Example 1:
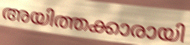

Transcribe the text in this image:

അയിത്തക്കാരായി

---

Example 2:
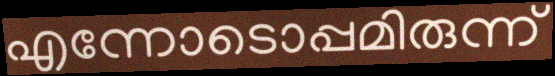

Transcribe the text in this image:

എന്നോടൊപ്പമിരുന്ന്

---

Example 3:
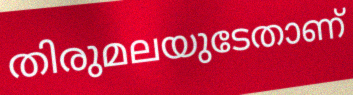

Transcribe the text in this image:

തിരുമലയുടേതാണ്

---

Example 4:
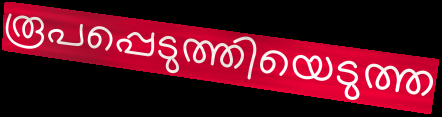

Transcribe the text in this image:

രൂപപ്പെടുത്തിയെടുത്ത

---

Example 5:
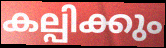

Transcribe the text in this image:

കല്പിക്കും